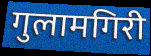
गुलामगिरी